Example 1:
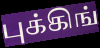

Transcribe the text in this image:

புக்கிங்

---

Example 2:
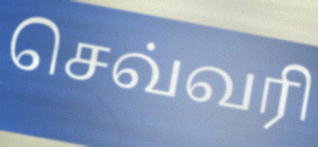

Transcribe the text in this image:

செவ்வரி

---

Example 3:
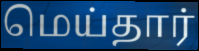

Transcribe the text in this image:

மெய்தார்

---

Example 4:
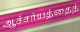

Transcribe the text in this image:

ஆச்சர்யத்தைத்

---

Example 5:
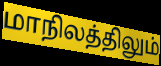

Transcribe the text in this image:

மாநிலத்திலும்